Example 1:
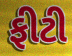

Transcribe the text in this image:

ફીટી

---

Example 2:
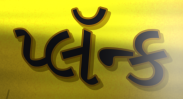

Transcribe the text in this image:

પ્લૅન્ક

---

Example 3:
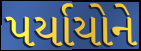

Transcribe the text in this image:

પર્યાયોને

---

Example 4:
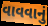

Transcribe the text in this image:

વાવવાનું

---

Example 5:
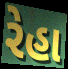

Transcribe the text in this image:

રેહા